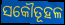
ସକୌତୂହଳ